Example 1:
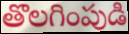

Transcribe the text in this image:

తొలగింపుడి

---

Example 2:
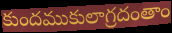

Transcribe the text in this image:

కుందముకులాగ్రదంతాం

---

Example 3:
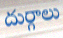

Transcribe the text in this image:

దుర్గాలు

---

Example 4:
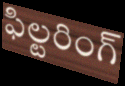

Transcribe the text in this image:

ఫిల్టరింగ్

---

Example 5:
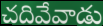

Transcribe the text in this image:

చదివేవాడు